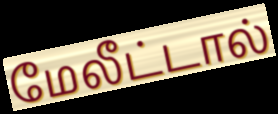
மேலீட்டால்